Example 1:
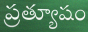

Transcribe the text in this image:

ప్రత్యూషం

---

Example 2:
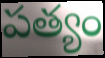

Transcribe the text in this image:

పత్యం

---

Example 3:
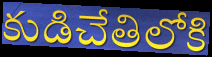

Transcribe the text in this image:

కుడిచేతిలోకి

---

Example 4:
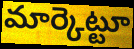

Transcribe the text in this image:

మార్కెట్టూ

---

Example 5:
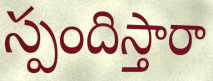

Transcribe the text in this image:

స్పందిస్తారా